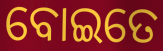
ବୋଇତେ